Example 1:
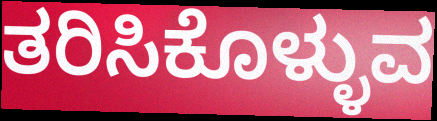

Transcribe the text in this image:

ತರಿಸಿಕೊಳ್ಳುವ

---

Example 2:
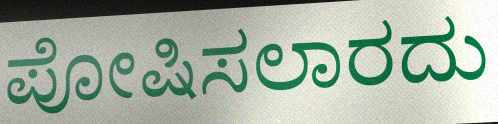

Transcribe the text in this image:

ಪೋಷಿಸಲಾರದು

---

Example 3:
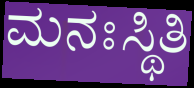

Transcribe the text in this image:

ಮನಃಸ್ಥಿತಿ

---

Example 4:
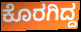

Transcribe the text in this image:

ಕೊರಗಿದ್ದ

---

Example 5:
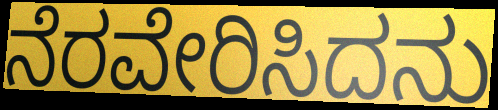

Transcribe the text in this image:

ನೆರವೇರಿಸಿದನು